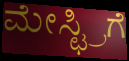
ಮೇಸ್ಟ್ರಿಗೆ